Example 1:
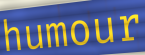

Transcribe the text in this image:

humour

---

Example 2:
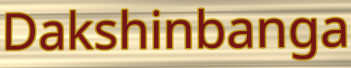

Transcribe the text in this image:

Dakshinbanga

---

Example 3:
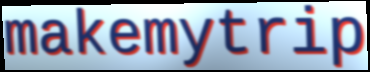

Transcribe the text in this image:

makemytrip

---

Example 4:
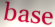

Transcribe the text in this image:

base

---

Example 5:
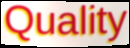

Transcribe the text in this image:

Quality